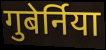
गुबेर्निया